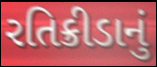
રતિક્રીડાનું